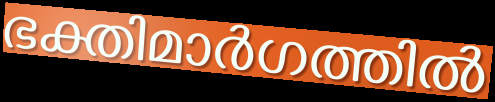
ഭക്തിമാർഗത്തിൽ